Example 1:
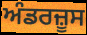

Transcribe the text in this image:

ਅੰਡਰਜ਼ੂਸ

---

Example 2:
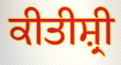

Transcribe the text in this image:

ਕੀਤੀਸ਼੍ਰੀ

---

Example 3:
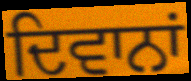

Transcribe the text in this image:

ਦਿਵਾਨਾਂ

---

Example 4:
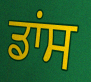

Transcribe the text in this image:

ਡਾਂਸ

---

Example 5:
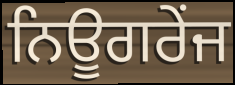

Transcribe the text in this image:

ਨਿਊਗਰੇਂਜ